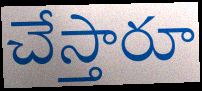
చేస్తారూ